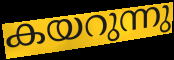
കയറുന്നു